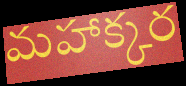
మహాక్కర